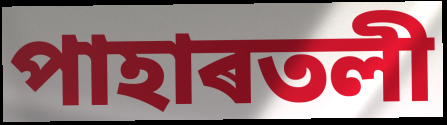
পাহাৰতলী